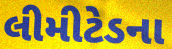
લીમીટેડના